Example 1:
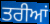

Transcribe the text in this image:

ਤਰੀਆਂ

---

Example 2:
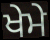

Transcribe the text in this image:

ਖੇਮੇ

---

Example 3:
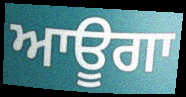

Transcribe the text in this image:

ਆਊਗਾ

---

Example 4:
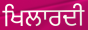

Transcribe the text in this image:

ਖਿਲਾਰਦੀ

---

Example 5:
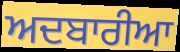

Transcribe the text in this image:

ਅਦਬਾਰੀਆ